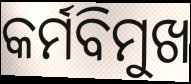
କର୍ମବିମୁଖ